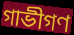
গাভীগণ